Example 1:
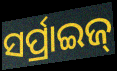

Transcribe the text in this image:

ସର୍ପ୍ରାଇଜ୍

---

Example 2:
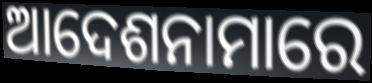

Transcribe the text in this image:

ଆଦେଶନାମାରେ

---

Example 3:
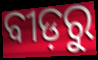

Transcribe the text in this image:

ବୀଡ଼ରୁ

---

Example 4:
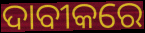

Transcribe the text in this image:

ଦାବୀକରେ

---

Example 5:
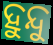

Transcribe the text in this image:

ହୁନ୍ଦୁ